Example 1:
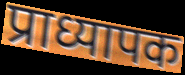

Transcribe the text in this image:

प्राध्यापक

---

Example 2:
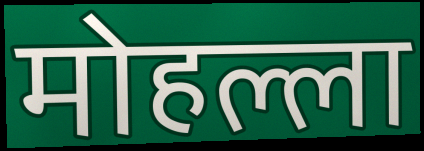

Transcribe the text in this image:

मोहल्‍ला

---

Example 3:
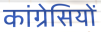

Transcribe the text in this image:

कांग्रेसियों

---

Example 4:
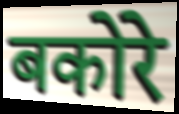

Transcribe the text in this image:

बकोरे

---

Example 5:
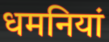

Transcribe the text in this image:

धमनियां